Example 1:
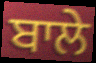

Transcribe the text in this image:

ਬਾਲੇ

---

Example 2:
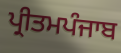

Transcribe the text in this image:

ਪ੍ਰੀਤਮਪੰਜਾਬ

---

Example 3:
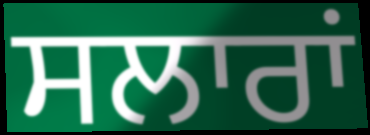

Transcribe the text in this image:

ਸਲਾਰਾਂ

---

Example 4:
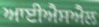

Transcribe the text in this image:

ਆਈਐਸਐਲ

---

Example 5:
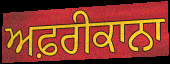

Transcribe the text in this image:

ਅਫ਼ਰੀਕਾਨਾ